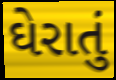
ઘેરાતું